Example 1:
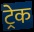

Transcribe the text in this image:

ट्रेक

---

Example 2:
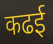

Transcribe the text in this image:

कढई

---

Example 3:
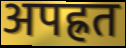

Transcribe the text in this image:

अपह्रत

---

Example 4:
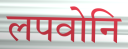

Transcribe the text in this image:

लपवोनि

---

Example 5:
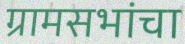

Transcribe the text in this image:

ग्रामसभांचा